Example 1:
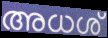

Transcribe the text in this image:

അധശ്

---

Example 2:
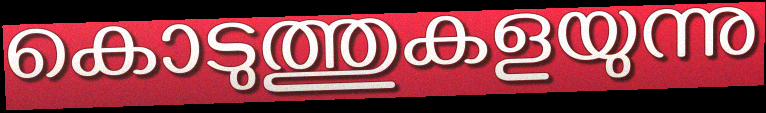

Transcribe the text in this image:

കൊടുത്തുകളയുന്നു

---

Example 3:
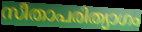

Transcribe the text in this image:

സീതാപരിത്യാഗം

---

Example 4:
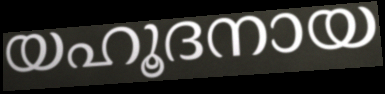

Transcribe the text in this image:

യഹൂദനായ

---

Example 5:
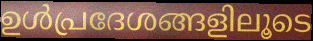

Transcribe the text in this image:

ഉൾപ്രദേശങ്ങളിലൂടെ